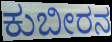
ಕುಬೀರನ